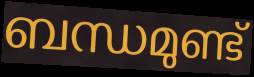
ബന്ധമുണ്ട്